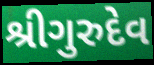
શ્રીગુરુદેવ